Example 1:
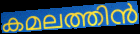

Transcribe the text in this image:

കമലത്തിൻ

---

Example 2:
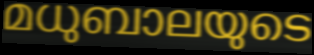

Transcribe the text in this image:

മധുബാലയുടെ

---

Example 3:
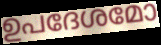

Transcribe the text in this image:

ഉപദേശമോ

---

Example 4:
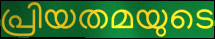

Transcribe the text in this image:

പ്രിയതമയുടെ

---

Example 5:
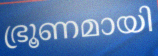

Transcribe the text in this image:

ഭ്രൂണമായി